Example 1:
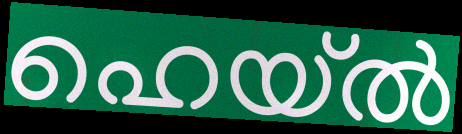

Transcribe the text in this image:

ഹെയ്ൽ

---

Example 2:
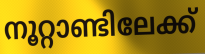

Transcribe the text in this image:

നൂറ്റാണ്ടിലേക്ക്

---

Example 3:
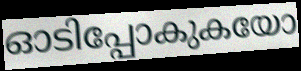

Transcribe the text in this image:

ഓടിപ്പോകുകയോ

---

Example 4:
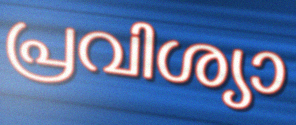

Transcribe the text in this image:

പ്രവിശ്യാ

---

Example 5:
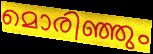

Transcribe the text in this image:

മൊരിഞ്ഞും